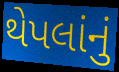
થેપલાંનું